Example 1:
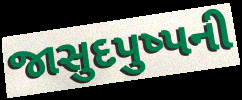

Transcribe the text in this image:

જાસુદપુષ્પની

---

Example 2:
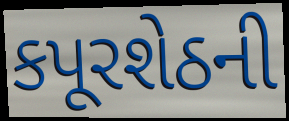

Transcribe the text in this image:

કપૂરશેઠની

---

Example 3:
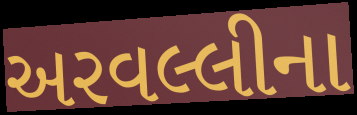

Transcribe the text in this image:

અરવલ્લીના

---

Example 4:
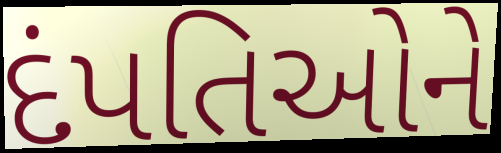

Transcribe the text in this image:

દંપતિઓને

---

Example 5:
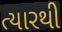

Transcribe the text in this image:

ત્યારથી